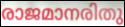
രാജമാനരിതു